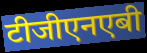
टीजीएनएबी